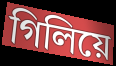
গিলিয়ে